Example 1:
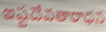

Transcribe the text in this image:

ఇష్టదేవతారాధన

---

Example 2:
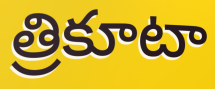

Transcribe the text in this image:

త్రికూటా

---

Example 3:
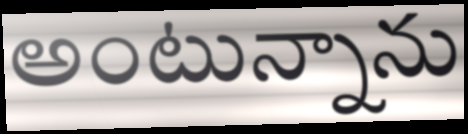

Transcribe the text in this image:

అంటున్నాను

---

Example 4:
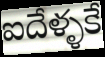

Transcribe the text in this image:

ఐదేళ్ళకే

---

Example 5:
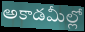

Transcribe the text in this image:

అకాడమీల్లో